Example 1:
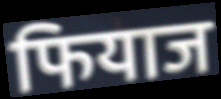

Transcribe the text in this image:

फियाज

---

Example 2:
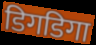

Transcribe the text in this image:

डिगडिगा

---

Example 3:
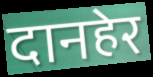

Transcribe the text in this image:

दानहेर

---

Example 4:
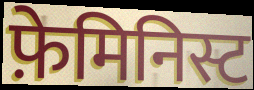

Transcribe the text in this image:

फ़ेमिनिस्ट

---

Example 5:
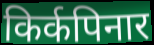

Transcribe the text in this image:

किर्कपिनार